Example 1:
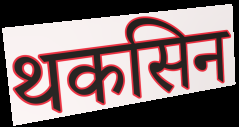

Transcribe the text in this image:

थकसिन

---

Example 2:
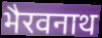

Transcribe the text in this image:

भैरवनाथ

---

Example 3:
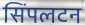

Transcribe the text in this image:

सिंपलटन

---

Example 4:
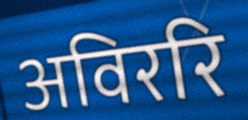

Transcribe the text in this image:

अविररि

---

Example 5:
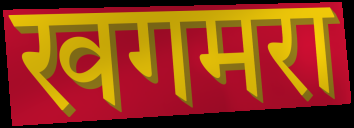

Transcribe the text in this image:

खगमरा